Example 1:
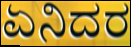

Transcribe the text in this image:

ಏನಿದರ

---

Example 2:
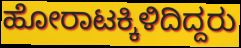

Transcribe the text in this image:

ಹೋರಾಟಕ್ಕಿಳಿದಿದ್ದರು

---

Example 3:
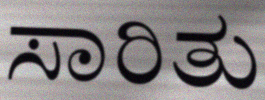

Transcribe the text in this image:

ಸಾರಿತು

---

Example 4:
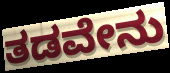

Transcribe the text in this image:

ತಡವೇನು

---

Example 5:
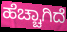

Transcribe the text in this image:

ಹೆಚ್ಚಾಗಿದೆ